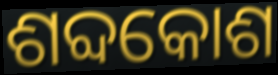
ଶବ୍ଦକୋଶ